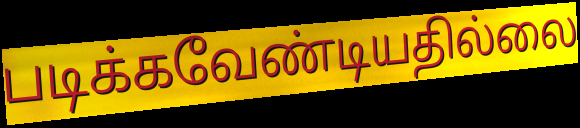
படிக்கவேண்டியதில்லை